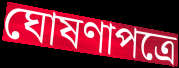
ঘোষণাপত্রে